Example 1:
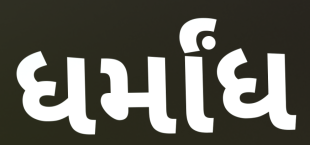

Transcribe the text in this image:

ધર્માંધ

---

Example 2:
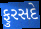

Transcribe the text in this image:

ફુરસદે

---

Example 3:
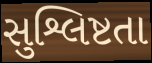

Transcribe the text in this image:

સુશ્લિષ્ટતા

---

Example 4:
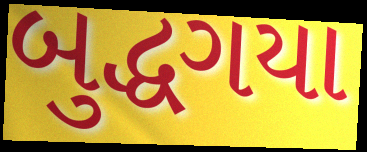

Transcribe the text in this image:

બુદ્ધગયા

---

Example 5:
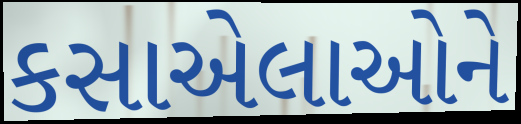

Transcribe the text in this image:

કસાએલાઓને